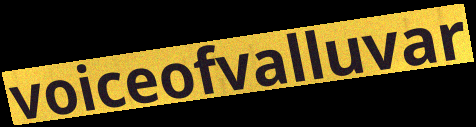
voiceofvalluvar